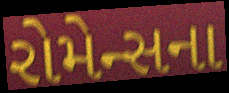
રોમેન્સના